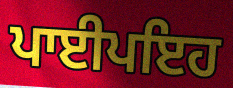
ਪਾਈਪਇਹ